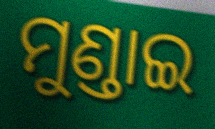
ମୁଣ୍ଡାଇ